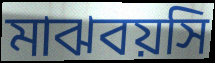
মাঝবয়সি